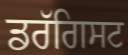
ਡਰੱਗਿਸਟ